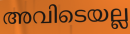
അവിടെയല്ല